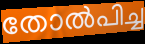
തോൽപിച്ച